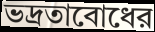
ভদ্রতাবোধের